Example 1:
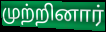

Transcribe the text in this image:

முற்றினார்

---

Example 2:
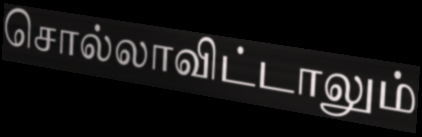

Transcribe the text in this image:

சொல்லாவிட்டாலும்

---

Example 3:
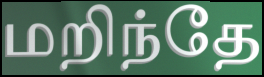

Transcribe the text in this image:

மறிந்தே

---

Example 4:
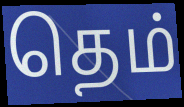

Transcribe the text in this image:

தெம்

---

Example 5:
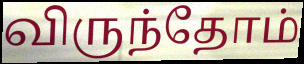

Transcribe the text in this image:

விருந்தோம்